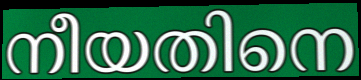
നീയതിനെ